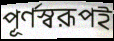
পূর্ণস্বরূপই